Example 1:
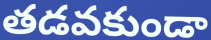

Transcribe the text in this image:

తడవకుండా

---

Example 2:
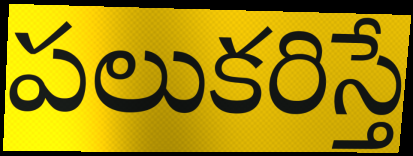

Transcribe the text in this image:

పలుకరిస్తే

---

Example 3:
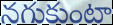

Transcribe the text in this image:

నగుకుంటా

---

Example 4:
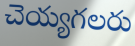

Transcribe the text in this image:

చెయ్యగలరు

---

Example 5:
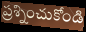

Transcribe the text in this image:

ప్రశ్నించుకోండి